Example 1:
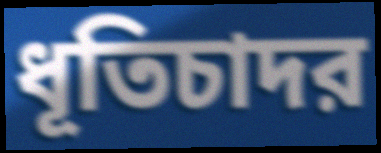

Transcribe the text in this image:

ধূতিচাদর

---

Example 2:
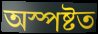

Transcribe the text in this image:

অস্পষ্টত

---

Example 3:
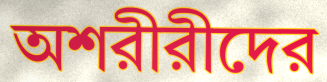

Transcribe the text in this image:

অশরীরীদের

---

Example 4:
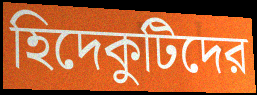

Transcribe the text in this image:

হিদেকুটিদের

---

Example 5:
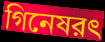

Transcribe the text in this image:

গিনেষরৎ